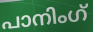
പാനിംഗ്